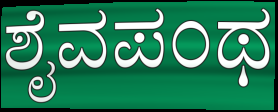
ಶೈವಪಂಥ